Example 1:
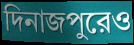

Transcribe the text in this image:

দিনাজপুরেও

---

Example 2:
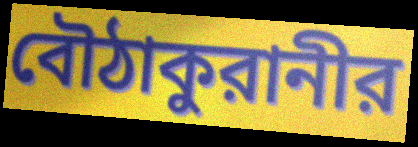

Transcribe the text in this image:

বৌঠাকুরানীর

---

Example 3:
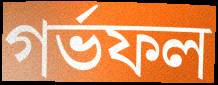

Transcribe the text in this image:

গর্ভফল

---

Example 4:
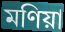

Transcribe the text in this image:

মণিয়া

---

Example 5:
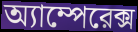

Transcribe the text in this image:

অ্যাম্পেরেক্স